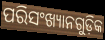
ପରିସଂଖ୍ୟାନଗୁଡ଼ିକ